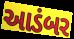
આડંબર